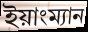
ইয়াংম্যান